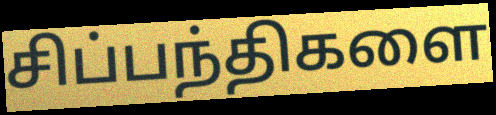
சிப்பந்திகளை